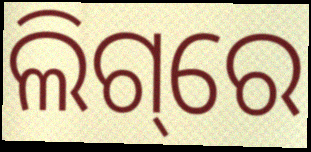
ଲିଗ୍‌ରେ